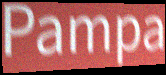
Pampa